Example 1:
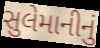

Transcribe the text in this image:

સુલેમાનીનું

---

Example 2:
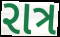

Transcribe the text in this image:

રાત્ર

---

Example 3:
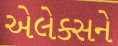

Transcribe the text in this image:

એલેક્સને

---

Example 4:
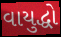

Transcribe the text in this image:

વાયુદ્ધો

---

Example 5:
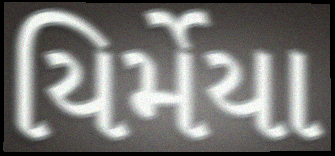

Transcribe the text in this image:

યિર્મેયા